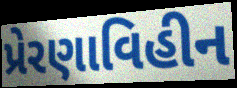
પ્રેરણાવિહીન